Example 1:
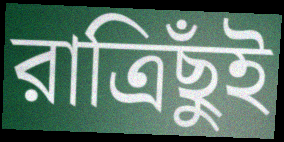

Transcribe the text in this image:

রাত্রিছুঁই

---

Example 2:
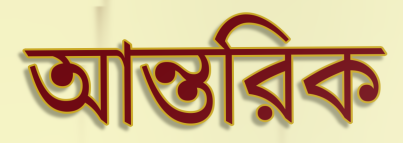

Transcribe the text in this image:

আন্তরিক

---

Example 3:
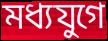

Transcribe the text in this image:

মধ্যযুগে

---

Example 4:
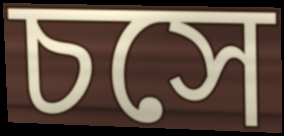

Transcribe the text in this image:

চসে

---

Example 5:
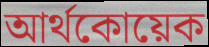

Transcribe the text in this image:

আর্থকোয়েক